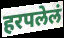
हरपलेलं